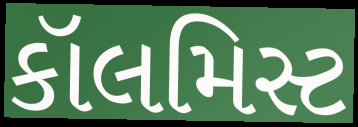
કૉલમિસ્ટ